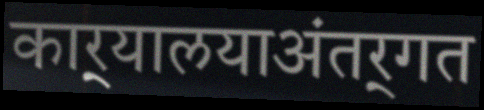
कार्यालयाअंतर्गत